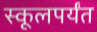
स्कूलपर्यंत